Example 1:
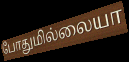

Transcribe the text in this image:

போதுமில்லையா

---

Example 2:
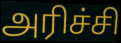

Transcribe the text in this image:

அரிச்சி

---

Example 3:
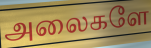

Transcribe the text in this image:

அலைகளே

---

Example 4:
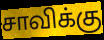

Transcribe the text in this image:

சாவிக்கு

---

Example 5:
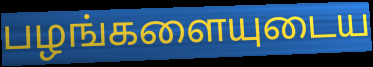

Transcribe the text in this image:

பழங்களையுடைய